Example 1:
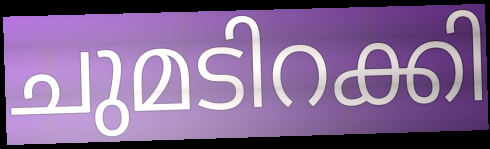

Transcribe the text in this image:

ചുമടിറക്കി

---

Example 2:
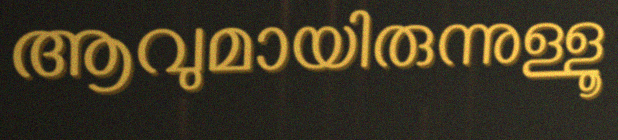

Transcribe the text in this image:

ആവുമായിരുന്നുള്ളൂ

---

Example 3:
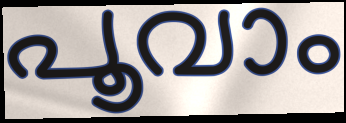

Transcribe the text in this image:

പൂവാം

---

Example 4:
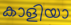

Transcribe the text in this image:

കാളിയാ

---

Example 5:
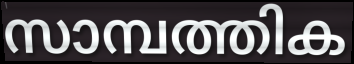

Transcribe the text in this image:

സാമ്പത്തിക